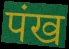
पंख